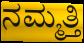
ನಮ್ಮತ್ತಿ